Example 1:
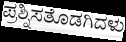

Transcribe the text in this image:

ಪ್ರಶ್ನಿಸತೊಡಗಿದಳು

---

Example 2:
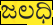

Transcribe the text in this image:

ಜಲಧಿ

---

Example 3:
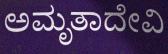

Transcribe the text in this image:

ಅಮೃತಾದೇವಿ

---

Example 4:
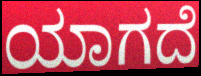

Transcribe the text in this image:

ಯಾಗದೆ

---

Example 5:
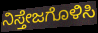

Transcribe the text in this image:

ನಿಸ್ತೇಜಗೊಳಿಸಿ